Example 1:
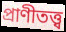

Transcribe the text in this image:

প্রাণীতত্ত্ব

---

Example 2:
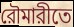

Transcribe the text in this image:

রৌমারীতে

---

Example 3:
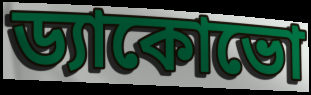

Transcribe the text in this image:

ড্যাকোভো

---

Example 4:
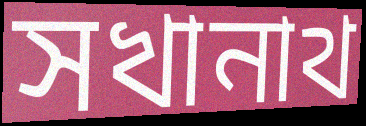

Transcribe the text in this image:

সখানাথ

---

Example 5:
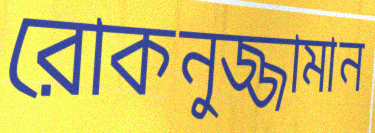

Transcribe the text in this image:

রোকনুজ্জামান